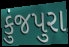
કુંજપુરા